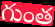
గుంత